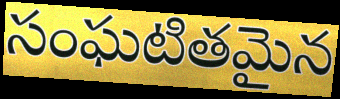
సంఘటితమైన